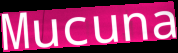
Mucuna